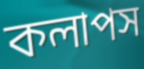
কলাপস